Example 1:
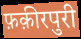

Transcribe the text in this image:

फ़क़ीरपुरी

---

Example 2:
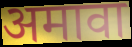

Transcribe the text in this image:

अमावा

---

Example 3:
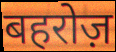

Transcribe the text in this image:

बहरोज़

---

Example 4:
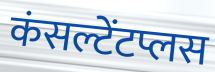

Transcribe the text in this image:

कंसल्टेंटप्लस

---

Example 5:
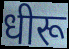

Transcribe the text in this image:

धीरू